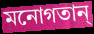
মনোগতান্